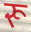
रू